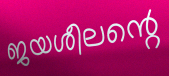
ജയശീലന്റെ